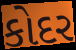
કોદર